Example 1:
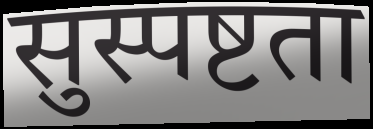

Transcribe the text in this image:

सुस्पष्टता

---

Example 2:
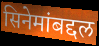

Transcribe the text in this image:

सिनेमांबद्दल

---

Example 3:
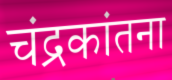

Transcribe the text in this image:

चंद्रकांतना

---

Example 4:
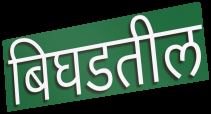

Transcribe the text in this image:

बिघडतील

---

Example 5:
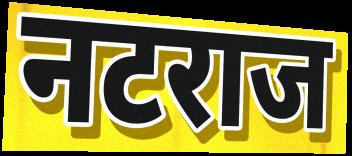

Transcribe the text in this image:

नटराज